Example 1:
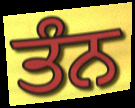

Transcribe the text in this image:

ਤੰਨ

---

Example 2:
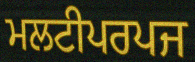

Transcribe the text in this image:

ਮਲਟੀਪਰਪਜ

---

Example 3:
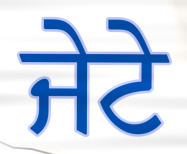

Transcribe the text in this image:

ਜੇਟੇ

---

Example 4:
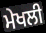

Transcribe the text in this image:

ਮੇਖਲੀ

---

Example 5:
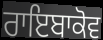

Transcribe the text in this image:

ਰਾਇਬਾਕੋਵ